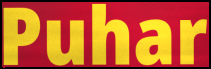
Puhar